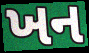
ખન